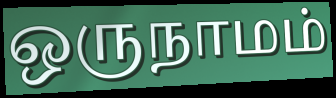
ஒருநாமம்